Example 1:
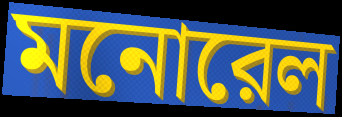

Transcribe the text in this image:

মনোরেল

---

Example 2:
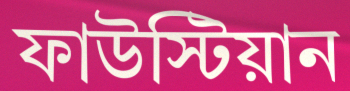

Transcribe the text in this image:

ফাউস্টিয়ান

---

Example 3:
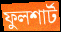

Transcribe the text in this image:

ফুলশার্ট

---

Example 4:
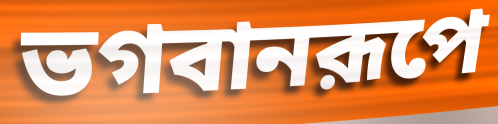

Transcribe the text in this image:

ভগবানরূপে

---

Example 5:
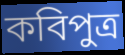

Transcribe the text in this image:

কবিপুত্র